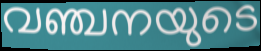
വഞ്ചനയുടെ